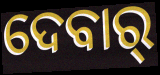
ଦେବାର୍